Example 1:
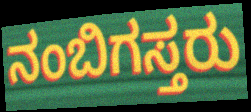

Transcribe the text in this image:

ನಂಬಿಗಸ್ತರು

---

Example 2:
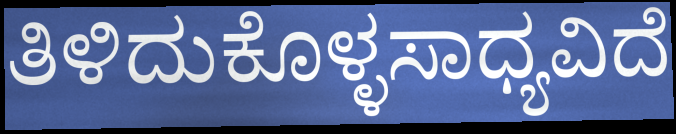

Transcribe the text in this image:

ತಿಳಿದುಕೊಳ್ಳಸಾಧ್ಯವಿದೆ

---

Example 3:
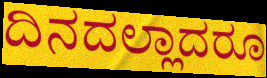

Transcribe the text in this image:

ದಿನದಲ್ಲಾದರೂ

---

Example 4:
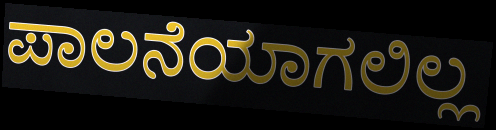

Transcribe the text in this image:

ಪಾಲನೆಯಾಗಲಿಲ್ಲ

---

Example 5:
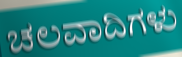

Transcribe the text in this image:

ಚಲವಾದಿಗಳು